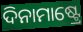
ଦିନାମାଷ୍ଟ୍ରେ